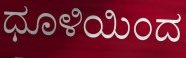
ಧೂಳಿಯಿಂದ